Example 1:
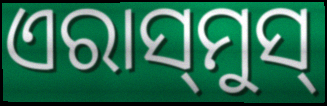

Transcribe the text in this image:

ଏରାସ୍‍ମୁସ୍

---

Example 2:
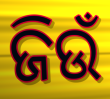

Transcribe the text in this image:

ଜିଉଁ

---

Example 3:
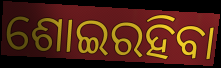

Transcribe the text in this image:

ଶୋଇରହିବା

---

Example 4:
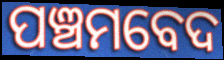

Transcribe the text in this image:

ପଞ୍ଚମବେଦ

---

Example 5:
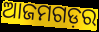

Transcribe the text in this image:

ଆଜମଗଡ଼ର